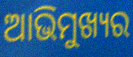
ଆଭିମୁଖ୍ୟର